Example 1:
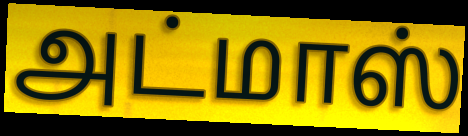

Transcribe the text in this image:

அட்மாஸ்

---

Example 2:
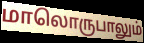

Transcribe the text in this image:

மாலொருபாலும்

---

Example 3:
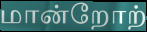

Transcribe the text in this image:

மான்றோற்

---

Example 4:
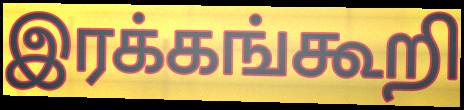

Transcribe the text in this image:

இரக்கங்கூறி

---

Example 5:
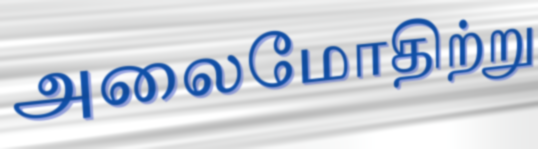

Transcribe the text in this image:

அலைமோதிற்று